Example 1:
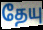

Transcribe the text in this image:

தேயு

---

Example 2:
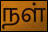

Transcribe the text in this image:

நள்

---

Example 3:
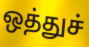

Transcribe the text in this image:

ஒத்துச்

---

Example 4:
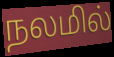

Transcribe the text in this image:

நலமில்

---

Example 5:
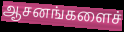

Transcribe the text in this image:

ஆசனங்களைச்